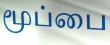
மூப்பை